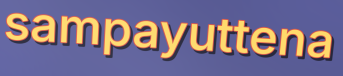
sampayuttena